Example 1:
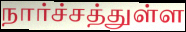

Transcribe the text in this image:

நார்ச்சத்துள்ள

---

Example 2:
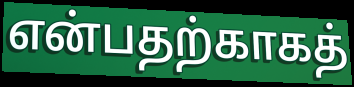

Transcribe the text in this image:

என்பதற்காகத்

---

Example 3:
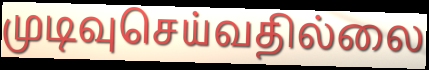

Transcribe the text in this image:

முடிவுசெய்வதில்லை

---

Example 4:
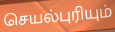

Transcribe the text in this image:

செயல்புரியும்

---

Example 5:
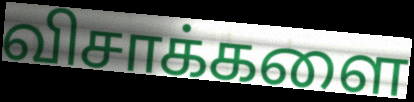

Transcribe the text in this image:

விசாக்களை